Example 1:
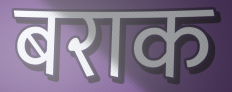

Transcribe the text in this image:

बराक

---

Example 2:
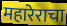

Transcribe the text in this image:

महारेराचा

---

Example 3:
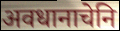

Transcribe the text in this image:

अवधानाचेनि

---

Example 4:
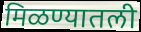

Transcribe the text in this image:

मिळण्यातली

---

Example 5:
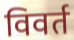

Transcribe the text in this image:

विवर्त